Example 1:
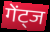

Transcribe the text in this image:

गेंट्ज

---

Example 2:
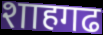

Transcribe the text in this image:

शाहगढ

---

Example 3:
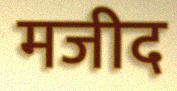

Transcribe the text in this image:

मजीद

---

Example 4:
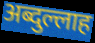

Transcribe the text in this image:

अब्दुल्लाह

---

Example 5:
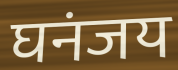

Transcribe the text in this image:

घनंजय